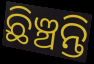
ଛିଞ୍ଚନ୍ତି